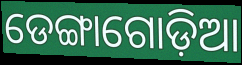
ଡେଙ୍ଗାଗୋଡ଼ିଆ